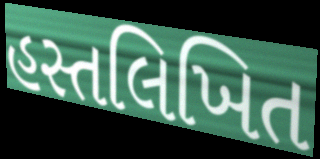
હસ્તલિખિત